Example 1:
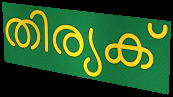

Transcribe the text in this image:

തിര്യക്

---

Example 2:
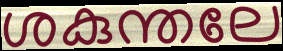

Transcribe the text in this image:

ശകുന്തലേ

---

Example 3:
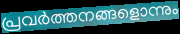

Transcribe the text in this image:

പ്രവർത്തനങ്ങളൊന്നും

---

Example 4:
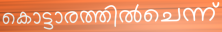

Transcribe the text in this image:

കൊട്ടാരത്തിൽചെന്ന്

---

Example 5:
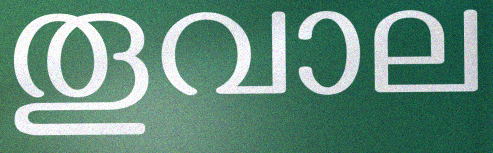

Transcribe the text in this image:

തൂവാല